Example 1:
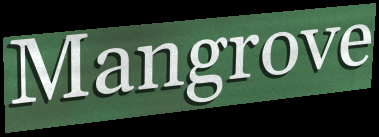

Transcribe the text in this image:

Mangrove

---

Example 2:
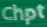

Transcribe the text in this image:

Chpt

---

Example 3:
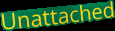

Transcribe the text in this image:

Unattached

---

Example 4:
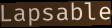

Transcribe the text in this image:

Lapsable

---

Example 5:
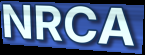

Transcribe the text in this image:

NRCA